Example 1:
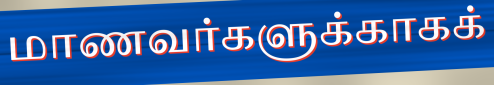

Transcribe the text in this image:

மாணவர்களுக்காகக்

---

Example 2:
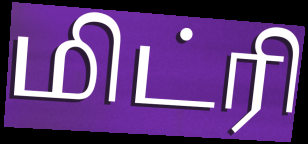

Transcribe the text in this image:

மிட்ரி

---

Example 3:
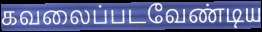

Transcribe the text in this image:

கவலைப்படவேண்டிய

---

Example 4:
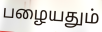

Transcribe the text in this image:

பழையதும்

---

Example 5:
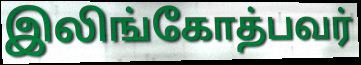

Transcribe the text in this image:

இலிங்கோத்பவர்